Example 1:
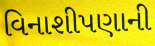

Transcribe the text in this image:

વિનાશીપણાની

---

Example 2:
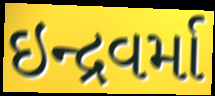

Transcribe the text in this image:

ઇન્દ્રવર્મા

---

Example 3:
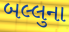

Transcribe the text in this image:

બલ્લુના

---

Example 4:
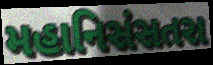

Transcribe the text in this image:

મહાનિસંસતરા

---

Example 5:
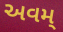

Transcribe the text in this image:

અવમ્